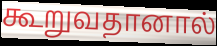
கூறுவதானால்